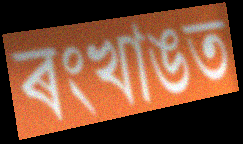
ৰংখাঙত